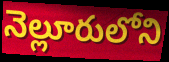
నెల్లూరులోని